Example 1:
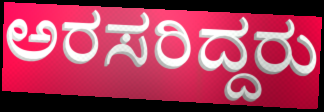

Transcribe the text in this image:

ಅರಸರಿದ್ದರು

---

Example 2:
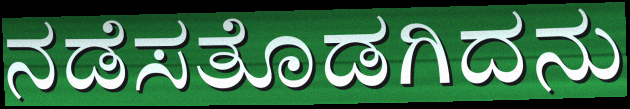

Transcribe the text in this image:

ನಡೆಸತೊಡಗಿದನು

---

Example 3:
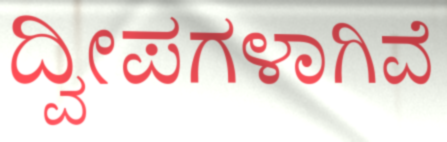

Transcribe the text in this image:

ದ್ವೀಪಗಳಾಗಿವೆ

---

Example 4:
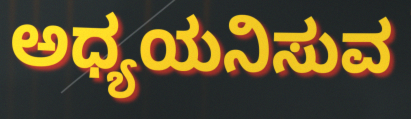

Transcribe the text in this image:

ಅಧ್ಯಯನಿಸುವ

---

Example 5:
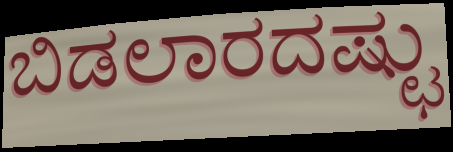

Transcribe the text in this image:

ಬಿಡಲಾರದಷ್ಟು